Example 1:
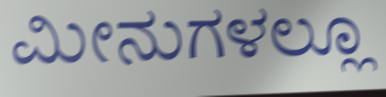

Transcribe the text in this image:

ಮೀನುಗಳಲ್ಲೂ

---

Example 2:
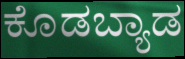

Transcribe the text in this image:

ಕೊಡಬ್ಯಾಡ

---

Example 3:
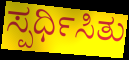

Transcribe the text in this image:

ಸ್ಪರ್ಧಿಸಿತು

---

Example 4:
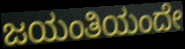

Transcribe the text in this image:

ಜಯಂತಿಯಂದೇ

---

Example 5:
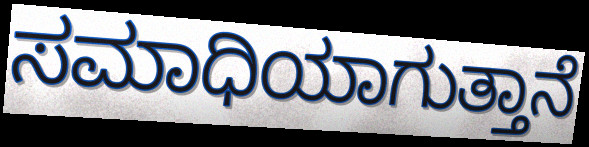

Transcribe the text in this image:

ಸಮಾಧಿಯಾಗುತ್ತಾನೆ